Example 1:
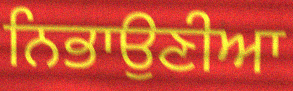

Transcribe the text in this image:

ਨਿਭਾਉਣੀਆ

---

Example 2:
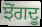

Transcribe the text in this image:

ਝੋਂਗਦੂ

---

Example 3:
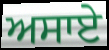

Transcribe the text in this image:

ਅਸਾਏ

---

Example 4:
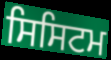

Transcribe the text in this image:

ਸਿਸਿਟਮ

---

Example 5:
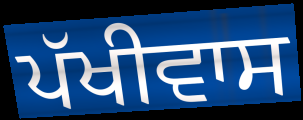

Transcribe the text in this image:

ਪੱਖੀਵਾਸ